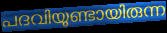
പദവിയുണ്ടായിരുന്ന